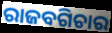
ରାଜବଗିଚାର